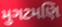
મુગટમણિ